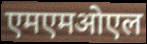
एमएमओएल